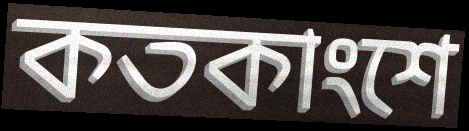
কতকাংশে